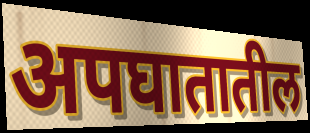
अपघातातील